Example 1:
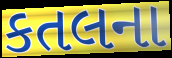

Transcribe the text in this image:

કતલના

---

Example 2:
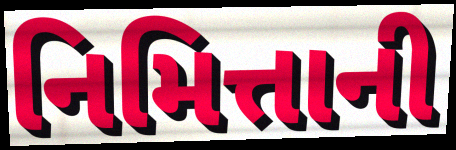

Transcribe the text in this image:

નિમિત્તાની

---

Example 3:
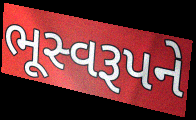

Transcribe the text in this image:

ભૂસ્વરૂપને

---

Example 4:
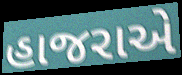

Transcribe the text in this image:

હાજરાએ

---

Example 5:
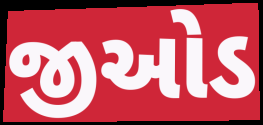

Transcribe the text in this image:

જીઓડ